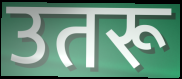
उतरू